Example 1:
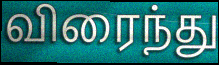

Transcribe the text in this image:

விரைந்து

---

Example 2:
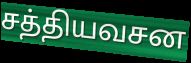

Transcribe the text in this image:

சத்தியவசன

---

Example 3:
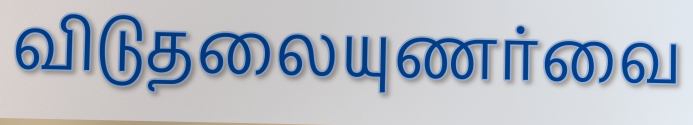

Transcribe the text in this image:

விடுதலையுணர்வை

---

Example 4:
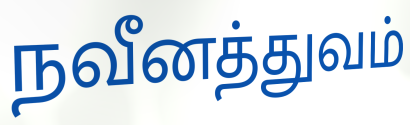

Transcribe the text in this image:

நவீனத்துவம்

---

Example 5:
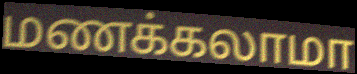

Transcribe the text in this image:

மணக்கலாமா